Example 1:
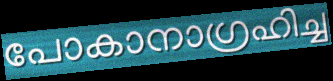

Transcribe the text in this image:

പോകാനാഗ്രഹിച്ച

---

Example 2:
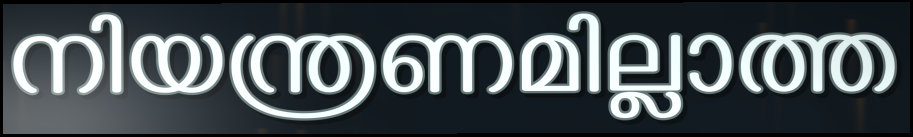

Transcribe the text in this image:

നിയന്ത്രണമില്ലാത്ത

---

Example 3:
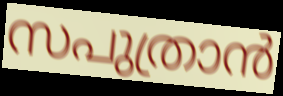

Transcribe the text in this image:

സപുത്രാൻ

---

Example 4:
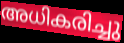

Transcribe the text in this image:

അധികരിച്ചു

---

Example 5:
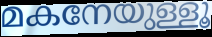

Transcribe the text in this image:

മകനേയുള്ളൂ